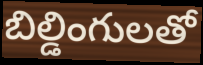
బిల్డింగులతో